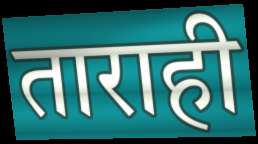
ताराही